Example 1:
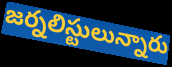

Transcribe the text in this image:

జర్నలిస్టులున్నారు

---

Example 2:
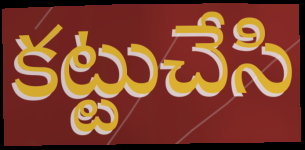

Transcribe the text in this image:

కట్టుచేసి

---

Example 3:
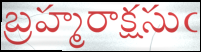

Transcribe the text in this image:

బ్రహ్మరాక్షసుఁ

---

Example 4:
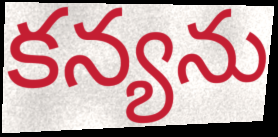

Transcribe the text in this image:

కన్యను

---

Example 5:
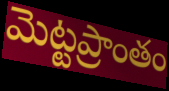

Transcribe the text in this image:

మెట్టప్రాంతం